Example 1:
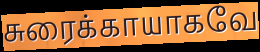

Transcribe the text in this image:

சுரைக்காயாகவே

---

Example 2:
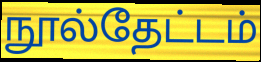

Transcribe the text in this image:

நூல்தேட்டம்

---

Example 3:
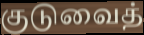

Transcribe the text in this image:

குடுவைத்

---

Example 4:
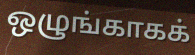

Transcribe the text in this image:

ஒழுங்காகக்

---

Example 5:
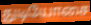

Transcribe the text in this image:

துடியோசை